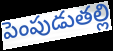
పెంపుడుతల్లి